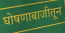
घोषणाबाजीतून